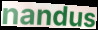
nandus